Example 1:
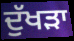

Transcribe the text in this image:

ਦੁੱਖਡ਼ਾ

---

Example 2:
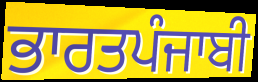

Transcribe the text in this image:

ਭਾਰਤਪੰਜਾਬੀ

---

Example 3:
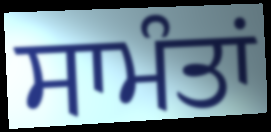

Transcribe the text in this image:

ਸਾਮੰਤਾਂ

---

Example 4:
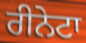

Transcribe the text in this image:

ਰੀਨੇਟਾ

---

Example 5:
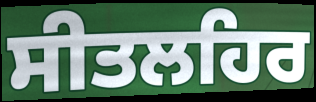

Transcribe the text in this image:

ਸੀਤਲਹਿਰ